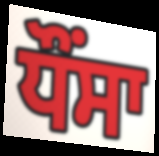
ਧੌਂਸਾ